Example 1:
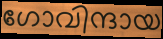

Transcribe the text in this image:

ഗോവിന്ദായ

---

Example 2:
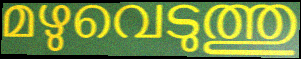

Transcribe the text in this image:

മഴുവെടുത്തു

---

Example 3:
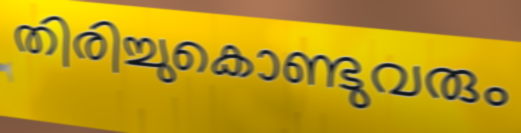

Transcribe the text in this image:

തിരിച്ചുകൊണ്ടുവരും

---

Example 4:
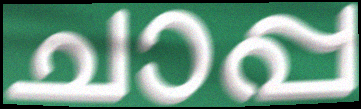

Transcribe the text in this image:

ചാപ്പ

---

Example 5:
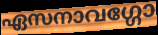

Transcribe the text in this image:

ഏസനാവഗ്ഗോ